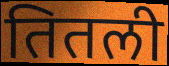
तितली